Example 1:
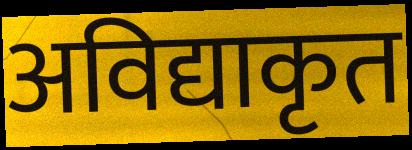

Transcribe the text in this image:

अविद्याकृत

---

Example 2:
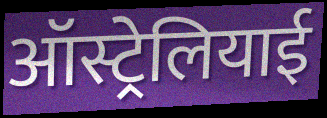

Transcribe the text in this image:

ऑस्ट्रेलियाई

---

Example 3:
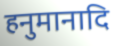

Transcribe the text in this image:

हनुमानादि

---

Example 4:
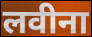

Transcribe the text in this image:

लवीना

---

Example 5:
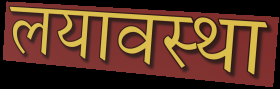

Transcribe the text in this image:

लयावस्था